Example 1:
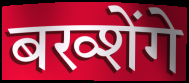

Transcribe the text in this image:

बख्शेंगे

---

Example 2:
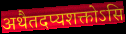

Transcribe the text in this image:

अथैतदप्यशक्तोऽसि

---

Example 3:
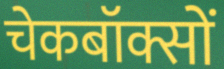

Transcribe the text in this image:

चेकबॉक्सों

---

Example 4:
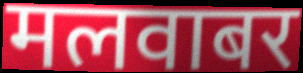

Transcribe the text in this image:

मलवाबर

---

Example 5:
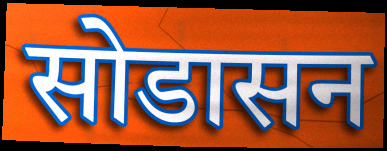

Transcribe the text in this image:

सोडासन